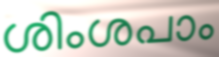
ശിംശപാം